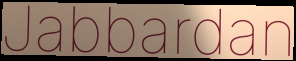
Jabbardan